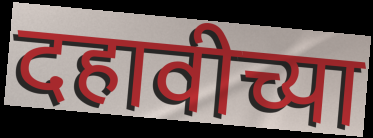
दहावीच्या